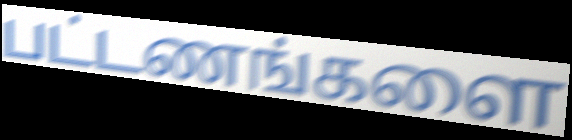
பட்டணங்களை